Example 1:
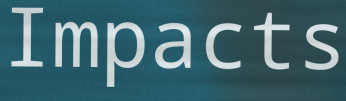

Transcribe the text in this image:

Impacts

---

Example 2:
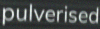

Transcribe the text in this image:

pulverised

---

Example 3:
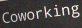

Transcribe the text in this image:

Coworking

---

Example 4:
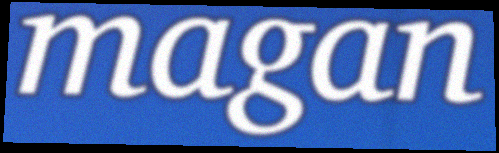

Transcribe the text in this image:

magan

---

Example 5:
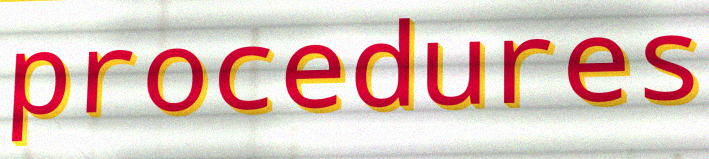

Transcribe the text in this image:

procedures